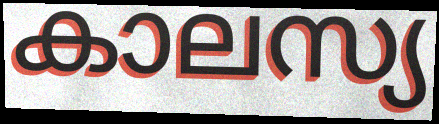
കാലസ്യ